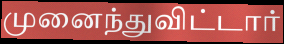
முனைந்துவிட்டார்